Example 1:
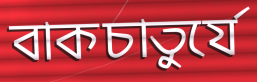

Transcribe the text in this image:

বাকচাতুর্যে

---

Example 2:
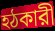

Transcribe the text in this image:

হঠকারী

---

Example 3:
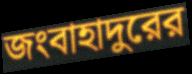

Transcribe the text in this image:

জংবাহাদুরের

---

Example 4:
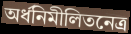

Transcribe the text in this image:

অর্ধনিমীলিতনেত্র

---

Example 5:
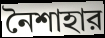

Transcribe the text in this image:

নৈশাহার